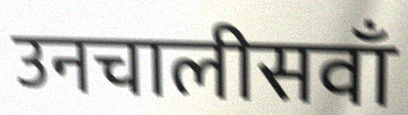
उनचालीसवाँ